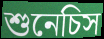
শুনেচিস